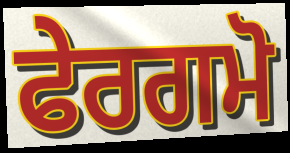
ਫੇਰਗਮੋ